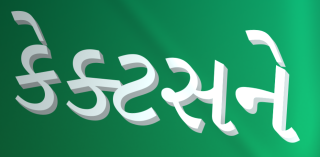
કેક્ટસને